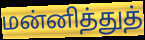
மன்னித்துத்